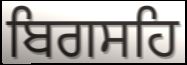
ਬਿਗਸਹਿ